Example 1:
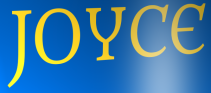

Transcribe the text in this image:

JOYCE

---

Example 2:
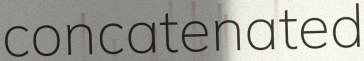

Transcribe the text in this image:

concatenated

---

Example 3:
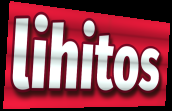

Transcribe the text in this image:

lihitos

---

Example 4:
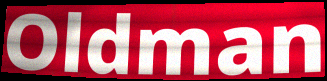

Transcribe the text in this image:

Oldman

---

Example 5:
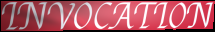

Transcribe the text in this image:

INVOCATION